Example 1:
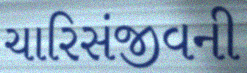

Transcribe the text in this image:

ચારિસંજીવની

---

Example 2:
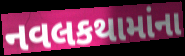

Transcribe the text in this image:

નવલકથામાંના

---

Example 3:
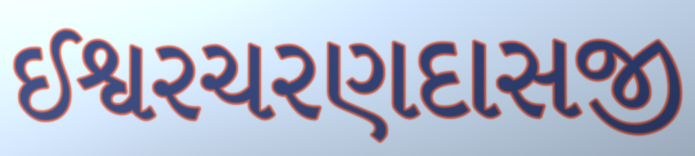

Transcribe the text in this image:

ઈશ્વરચરણદાસજી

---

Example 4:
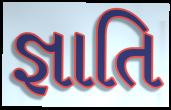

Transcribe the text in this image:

જ્ઞાતિ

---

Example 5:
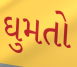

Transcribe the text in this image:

ઘુમતો